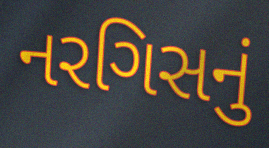
નરગિસનું